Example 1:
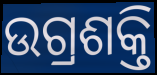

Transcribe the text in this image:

ଉଗ୍ରଶକ୍ତି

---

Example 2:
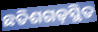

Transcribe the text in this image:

ଛତିଶଗଡ଼ସ୍ଥିତ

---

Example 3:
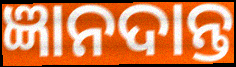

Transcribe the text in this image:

ଜ୍ଞାନଦାନ୍ତ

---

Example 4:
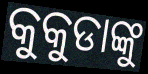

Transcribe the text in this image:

କୁକୁଡାଙ୍କୁ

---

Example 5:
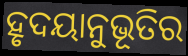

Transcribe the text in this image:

ହୃଦୟାନୁଭୂତିର